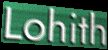
Lohith